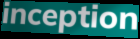
inception